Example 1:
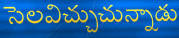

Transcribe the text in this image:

సెలవిచ్చుచున్నాడు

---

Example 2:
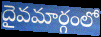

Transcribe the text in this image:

దైవమార్గంలో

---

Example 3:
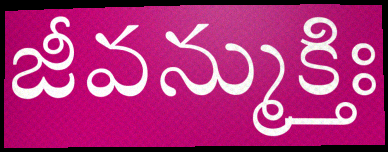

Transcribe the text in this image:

జీవన్ముక్తిః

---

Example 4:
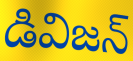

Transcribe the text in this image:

డివిజన్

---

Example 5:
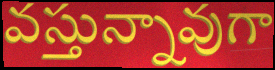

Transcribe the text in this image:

వస్తున్నావుగా